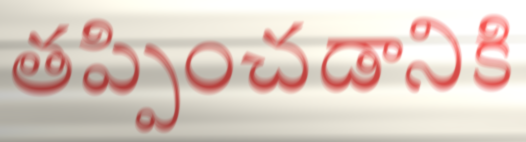
తప్పించడానికి